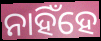
ନାହିଁହେ